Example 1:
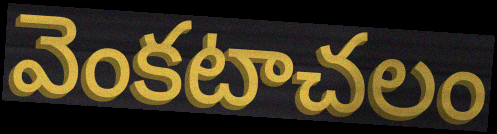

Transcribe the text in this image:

వెంకటాచలం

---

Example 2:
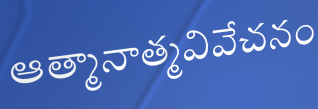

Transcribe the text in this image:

ఆత్మానాత్మవివేచనం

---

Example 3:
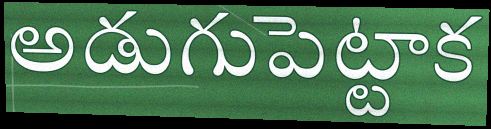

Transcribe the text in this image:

అడుగుపెట్టాక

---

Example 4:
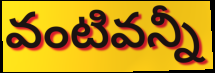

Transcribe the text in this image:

వంటివన్నీ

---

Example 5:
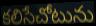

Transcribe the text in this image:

కలిసేచోటును